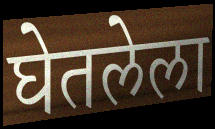
घेतलेला